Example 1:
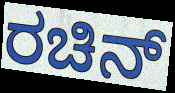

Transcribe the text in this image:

ರಚಿನ್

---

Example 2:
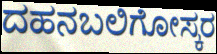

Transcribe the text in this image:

ದಹನಬಲಿಗೋಸ್ಕರ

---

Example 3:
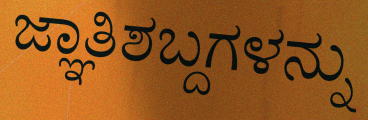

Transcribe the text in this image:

ಜ್ಞಾತಿಶಬ್ದಗಳನ್ನು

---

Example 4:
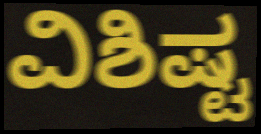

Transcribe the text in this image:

ವಿಶಿಷ್ಟ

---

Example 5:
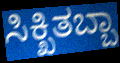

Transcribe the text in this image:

ಸಿಕ್ಖಿತಬ್ಬಾ